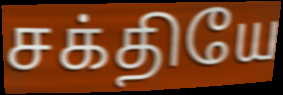
சக்தியே